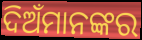
ଦିଅଁମାନଙ୍କର